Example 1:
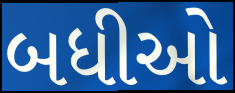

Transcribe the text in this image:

બધીઓ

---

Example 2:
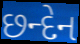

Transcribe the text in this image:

છન્દેન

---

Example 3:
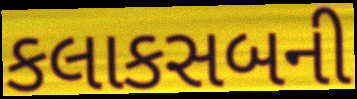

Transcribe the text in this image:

કલાકસબની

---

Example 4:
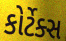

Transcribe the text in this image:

કોર્ટેક્સ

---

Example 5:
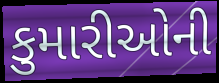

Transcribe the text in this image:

કુમારીઓની